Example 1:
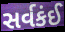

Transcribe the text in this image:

સર્વકંઈ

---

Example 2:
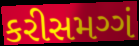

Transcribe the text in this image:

કરીસમગ્ગં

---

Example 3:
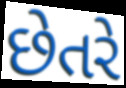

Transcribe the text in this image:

છેતરે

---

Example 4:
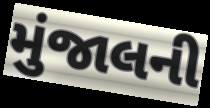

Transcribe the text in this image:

મુંજાલની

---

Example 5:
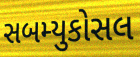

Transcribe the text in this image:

સબમ્યુકોસલ